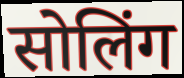
सोलिंग